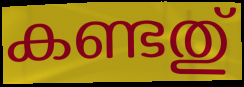
കണ്ടതു്